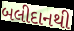
બલીદાનથી